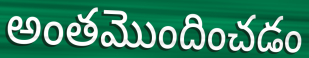
అంతమొందించడం